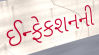
ઈન્ફેકશનની